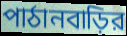
পাঠানবাড়ির